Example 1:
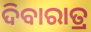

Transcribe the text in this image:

ଦିବାରାତ୍ର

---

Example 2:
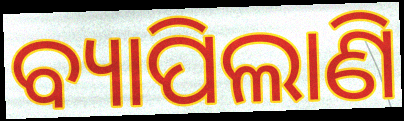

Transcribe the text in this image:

ବ୍ୟାପିଲାଣି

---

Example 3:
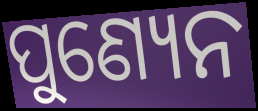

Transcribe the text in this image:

ପୁଣ୍ୟେନ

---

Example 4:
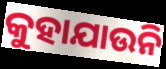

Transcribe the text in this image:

କୁହାଯାଉନି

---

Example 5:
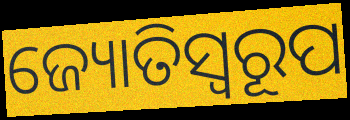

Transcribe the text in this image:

ଜ୍ୟୋତିସ୍ୱରୂପ